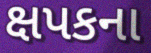
ક્ષપકના